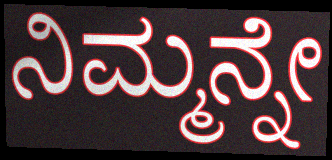
ನಿಮ್ಮನ್ನೇ